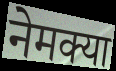
नेमक्या